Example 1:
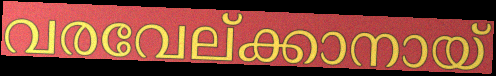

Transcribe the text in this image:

വരവേല്ക്കാനായ്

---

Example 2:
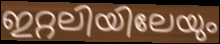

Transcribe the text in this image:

ഇറ്റലിയിലേയും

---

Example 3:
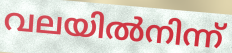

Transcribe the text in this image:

വലയിൽനിന്ന്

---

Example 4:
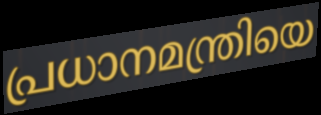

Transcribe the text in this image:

പ്രധാനമന്ത്രിയെ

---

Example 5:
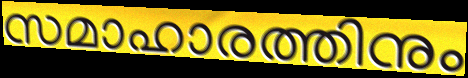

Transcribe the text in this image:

സമാഹാരത്തിനും